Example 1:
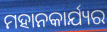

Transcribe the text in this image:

ମହାନକାର୍ଯ୍ୟର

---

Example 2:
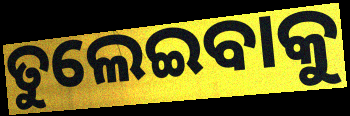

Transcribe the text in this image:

ତୁଲେଇବାକୁ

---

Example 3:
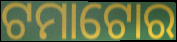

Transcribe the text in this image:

ଟମାଟୋର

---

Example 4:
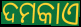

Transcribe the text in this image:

ଦମକାଏ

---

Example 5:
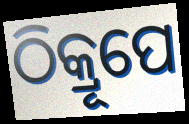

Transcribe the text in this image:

ଠିକ୍ରୂପେ